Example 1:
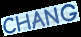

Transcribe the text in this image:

CHANG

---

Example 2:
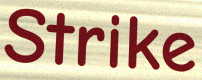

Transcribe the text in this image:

Strike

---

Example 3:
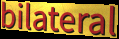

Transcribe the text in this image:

bilateral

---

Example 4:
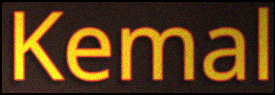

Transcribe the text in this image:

Kemal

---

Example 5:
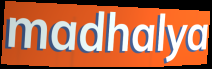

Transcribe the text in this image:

madhalya